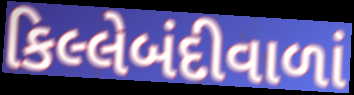
કિલ્લેબંદીવાળાં